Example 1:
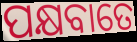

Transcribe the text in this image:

ପକ୍ଷବାତେ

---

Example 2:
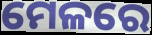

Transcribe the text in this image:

ମେଳରେ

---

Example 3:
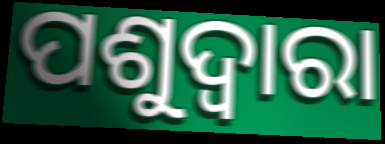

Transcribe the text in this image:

ପଶୁଦ୍ୱାରା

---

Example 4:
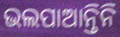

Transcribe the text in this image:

ଭଲପାଆନ୍ତିନି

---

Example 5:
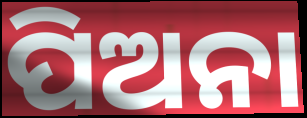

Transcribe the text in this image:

ପିଅନା